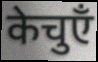
केचुएँ